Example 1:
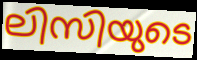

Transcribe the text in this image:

ലിസിയുടെ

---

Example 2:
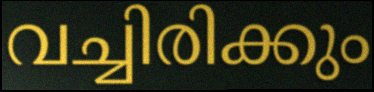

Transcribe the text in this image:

വച്ചിരിക്കും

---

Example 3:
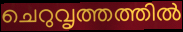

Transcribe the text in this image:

ചെറുവൃത്തത്തിൽ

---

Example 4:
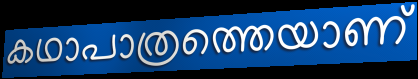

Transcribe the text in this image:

കഥാപാത്രത്തെയാണ്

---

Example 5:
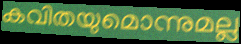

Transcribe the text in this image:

കവിതയുമൊന്നുമല്ല